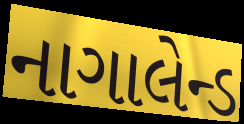
નાગાલેન્ડ